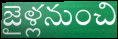
జైళ్లనుంచి